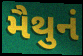
મૈથુનં